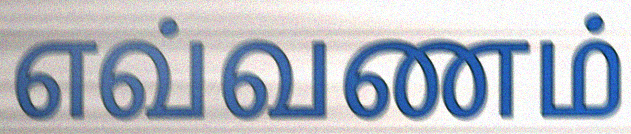
எவ்வணம்